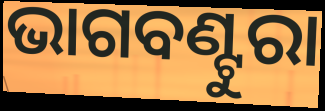
ଭାଗବଣ୍ଟୁରା